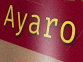
Ayaro